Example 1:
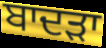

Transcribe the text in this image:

ਬਾਦੜਾ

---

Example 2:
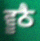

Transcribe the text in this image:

ਵੂਠੈ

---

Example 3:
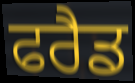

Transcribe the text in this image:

ਫਰੈਡ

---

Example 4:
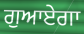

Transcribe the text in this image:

ਗੁਆਏਗਾ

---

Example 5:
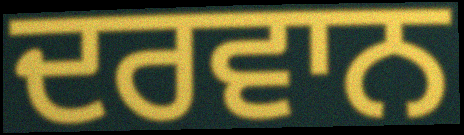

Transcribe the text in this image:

ਦਰਵਾਨ